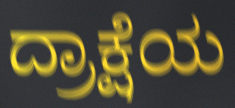
ದ್ರಾಕ್ಷೆಯ